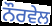
ਨੌਰਵੇਲ